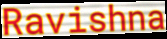
Ravishna